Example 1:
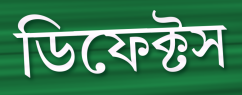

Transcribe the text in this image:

ডিফেক্টস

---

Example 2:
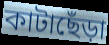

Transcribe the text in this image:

কাটাছেঁড়া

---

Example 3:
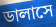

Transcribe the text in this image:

ডালাসে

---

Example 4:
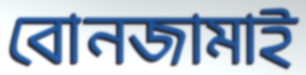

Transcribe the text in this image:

বোনজামাই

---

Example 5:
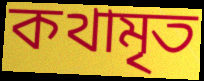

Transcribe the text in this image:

কথামৃত